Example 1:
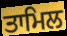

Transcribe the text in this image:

ਤਾਮਿਲ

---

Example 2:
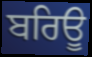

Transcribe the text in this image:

ਬਰਿਊ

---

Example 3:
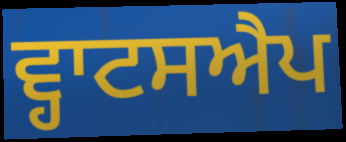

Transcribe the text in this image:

ਵ੍ਹਾਟਸਐਪ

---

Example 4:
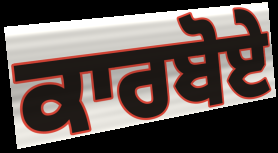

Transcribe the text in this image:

ਕਾਰਬੋਏ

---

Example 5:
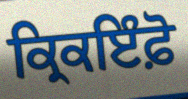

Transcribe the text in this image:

ਕ੍ਰਿਕਇੰਫ਼ੋ